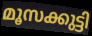
മൂസക്കുട്ടി